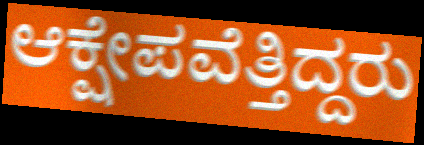
ಆಕ್ಷೇಪವೆತ್ತಿದ್ದರು